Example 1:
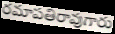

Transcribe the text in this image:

రమాపతిరావుగారు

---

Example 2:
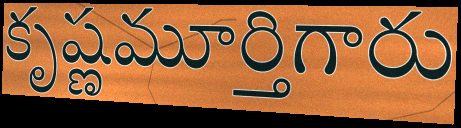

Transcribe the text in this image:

కృష్ణమూర్తిగారు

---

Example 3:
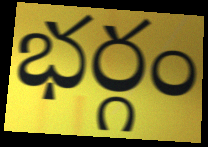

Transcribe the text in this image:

భర్గం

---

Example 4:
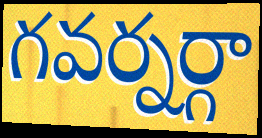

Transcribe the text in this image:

గవర్నర్గా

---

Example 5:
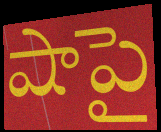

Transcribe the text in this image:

షాపై